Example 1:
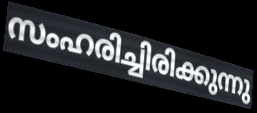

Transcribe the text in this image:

സംഹരിച്ചിരിക്കുന്നു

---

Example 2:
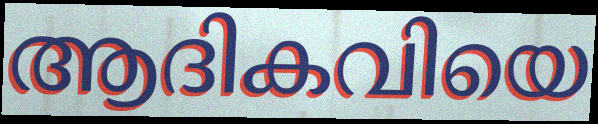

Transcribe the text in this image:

ആദികവിയെ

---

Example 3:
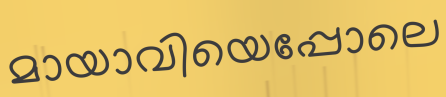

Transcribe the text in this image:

മായാവിയെപ്പോലെ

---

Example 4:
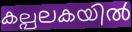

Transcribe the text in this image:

കല്പലകയിൽ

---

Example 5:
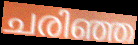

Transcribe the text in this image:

ചരിഞ്ഞ